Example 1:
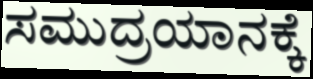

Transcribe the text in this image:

ಸಮುದ್ರಯಾನಕ್ಕೆ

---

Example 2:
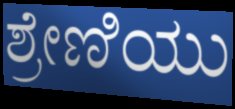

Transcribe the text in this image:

ಶ್ರೇಣಿಯು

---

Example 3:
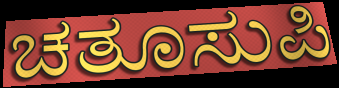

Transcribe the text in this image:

ಚತೂಸುಪಿ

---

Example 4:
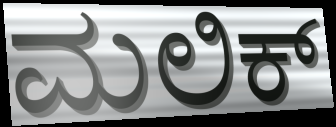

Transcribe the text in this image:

ಮಲಿಕ್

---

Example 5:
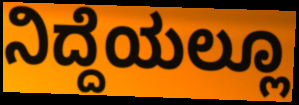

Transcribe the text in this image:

ನಿದ್ದೆಯಲ್ಲೂ